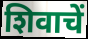
शिवाचें